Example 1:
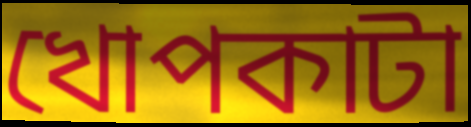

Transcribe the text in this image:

খোপকাটা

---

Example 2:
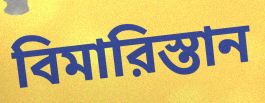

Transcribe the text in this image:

বিমারিস্তান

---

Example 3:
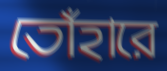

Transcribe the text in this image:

তোঁহারে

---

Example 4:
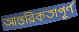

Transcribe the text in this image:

আন্তরিকতাপূর্ণ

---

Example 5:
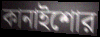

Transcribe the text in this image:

কানাইশোর